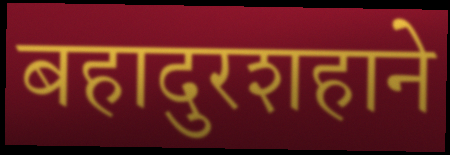
बहादुरशहाने